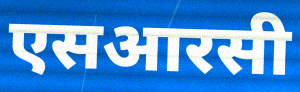
एसआरसी